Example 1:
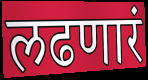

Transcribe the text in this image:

लढणारं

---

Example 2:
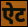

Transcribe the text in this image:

ऐट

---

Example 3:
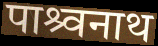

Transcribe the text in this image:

पाश्र्वनाथ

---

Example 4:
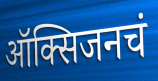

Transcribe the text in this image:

ऑक्सिजनचं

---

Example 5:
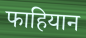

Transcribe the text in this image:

फाहियान